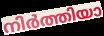
നിർത്തിയാ